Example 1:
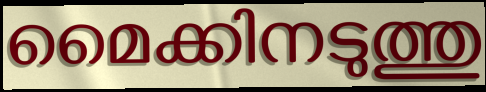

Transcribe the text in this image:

മൈക്കിനടുത്തു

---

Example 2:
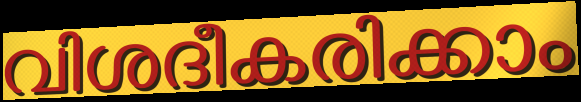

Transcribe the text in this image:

വിശദീകരിക്കാം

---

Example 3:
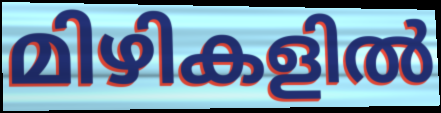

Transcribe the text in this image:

മിഴികളിൽ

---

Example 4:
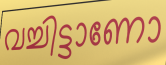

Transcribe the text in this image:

വച്ചിട്ടാണോ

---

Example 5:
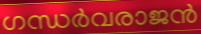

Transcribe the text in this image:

ഗന്ധർവരാജൻ